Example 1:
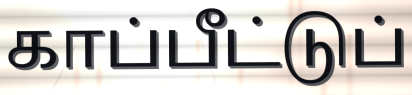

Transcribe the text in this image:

காப்பீட்டுப்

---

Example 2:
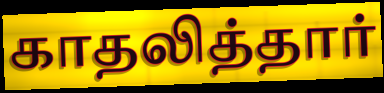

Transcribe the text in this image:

காதலித்தார்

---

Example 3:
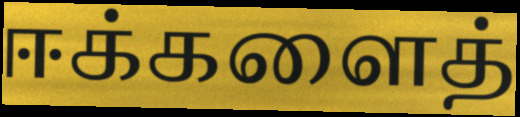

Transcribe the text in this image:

ஈக்களைத்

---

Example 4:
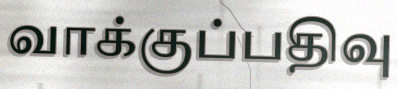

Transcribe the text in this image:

வாக்குப்பதிவு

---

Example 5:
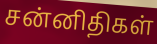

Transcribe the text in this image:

சன்னிதிகள்